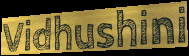
Vidhushini